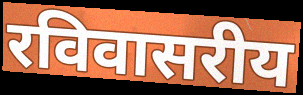
रविवासरीय